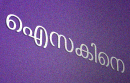
ഐസകിനെ